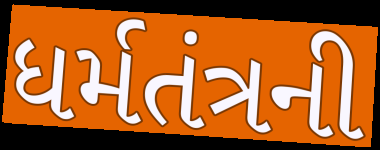
ધર્મતંત્રની